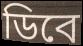
ডিবে